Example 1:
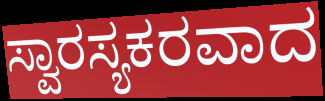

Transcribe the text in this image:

ಸ್ವಾರಸ್ಯಕರವಾದ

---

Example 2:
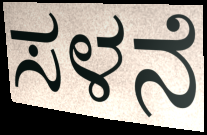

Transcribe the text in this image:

ಸಳನೆ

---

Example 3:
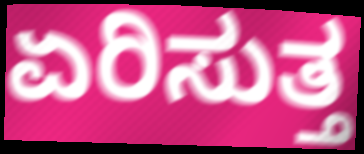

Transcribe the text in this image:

ಏರಿಸುತ್ತ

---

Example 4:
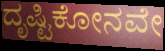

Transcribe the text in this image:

ದೃಷ್ಟಿಕೋನವೇ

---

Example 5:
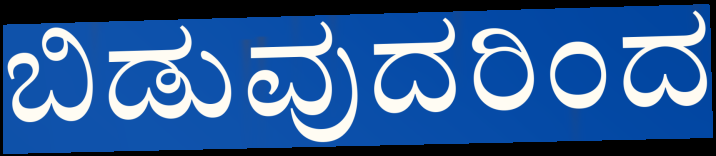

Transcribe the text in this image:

ಬಿಡುವುದರಿಂದ